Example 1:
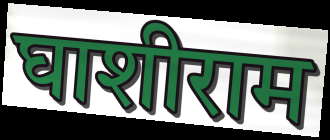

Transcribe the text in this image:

घाशीराम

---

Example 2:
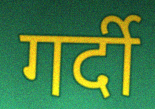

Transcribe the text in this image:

गर्दी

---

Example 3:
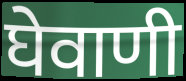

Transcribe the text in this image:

घेवाणी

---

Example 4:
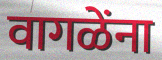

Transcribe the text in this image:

वागळेंना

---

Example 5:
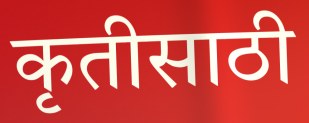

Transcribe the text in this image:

कृतीसाठी